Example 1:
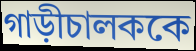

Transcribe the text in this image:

গাড়ীচালককে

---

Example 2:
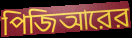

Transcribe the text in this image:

পিজিআরের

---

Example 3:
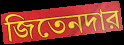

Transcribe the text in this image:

জিতেনদার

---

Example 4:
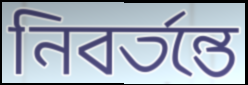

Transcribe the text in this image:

নিবর্তন্তে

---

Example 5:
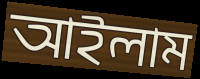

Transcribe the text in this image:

আইলাম